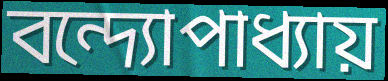
বন্দ্যোপাধ্যায়